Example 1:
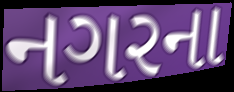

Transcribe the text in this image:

નગરના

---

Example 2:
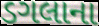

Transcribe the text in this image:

ડગલાના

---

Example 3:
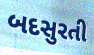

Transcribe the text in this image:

બદસુરતી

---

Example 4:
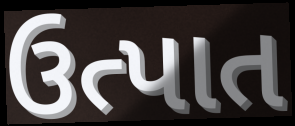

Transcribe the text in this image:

ઉત્પાત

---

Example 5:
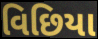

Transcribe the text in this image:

વિછિયા